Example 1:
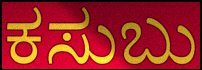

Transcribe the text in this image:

ಕಸುಬು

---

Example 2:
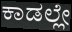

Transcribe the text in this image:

ಕಾಡಲ್ಲೇ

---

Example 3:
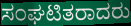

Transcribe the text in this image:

ಸಂಘಟಿತರಾದರು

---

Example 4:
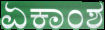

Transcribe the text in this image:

ಏಕಾಂಶ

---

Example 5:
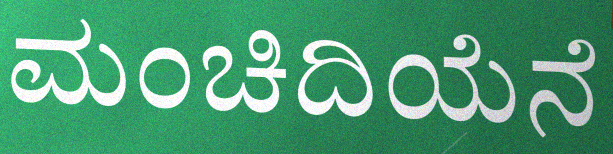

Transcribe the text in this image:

ಮಂಚಿದಿಯೆನೆ